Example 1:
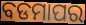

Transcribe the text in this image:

ବଡମାପର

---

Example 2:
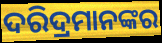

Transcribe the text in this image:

ଦରିଦ୍ରମାନଙ୍କର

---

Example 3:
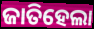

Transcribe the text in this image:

ଜାତିହେଲା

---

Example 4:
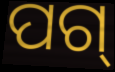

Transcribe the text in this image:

ପଗ୍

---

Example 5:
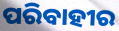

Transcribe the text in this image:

ପରିବାହୀର